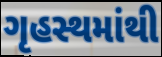
ગૃહસ્થમાંથી